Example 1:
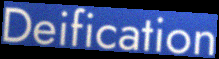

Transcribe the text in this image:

Deification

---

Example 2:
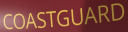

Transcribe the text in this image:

COASTGUARD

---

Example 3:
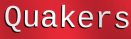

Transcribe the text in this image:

Quakers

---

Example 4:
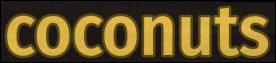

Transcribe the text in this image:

coconuts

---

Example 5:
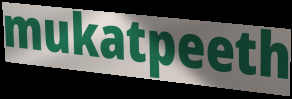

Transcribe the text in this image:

mukatpeeth